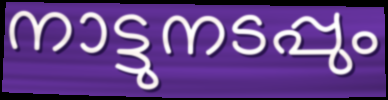
നാട്ടുനടപ്പും